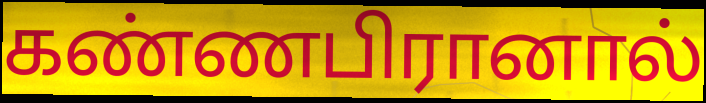
கண்ணபிரானால்